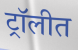
ट्रॉलीत